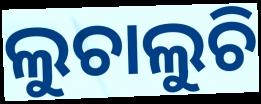
ଲୁଚାଲୁଚି